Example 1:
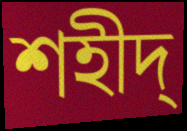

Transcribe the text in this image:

শহীদ্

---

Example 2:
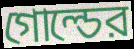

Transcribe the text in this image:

গোল্ডের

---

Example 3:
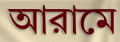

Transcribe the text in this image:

আরামে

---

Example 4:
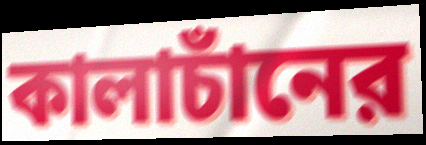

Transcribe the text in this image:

কালাচাঁনের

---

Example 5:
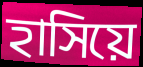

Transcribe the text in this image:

হাসিয়ে